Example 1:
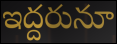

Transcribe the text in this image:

ఇద్దరునూ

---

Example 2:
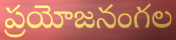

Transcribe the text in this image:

ప్రయోజనంగల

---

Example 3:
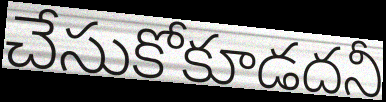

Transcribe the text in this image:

చేసుకోకూడదనీ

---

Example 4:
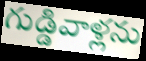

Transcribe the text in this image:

గుడ్డివాళ్లను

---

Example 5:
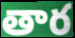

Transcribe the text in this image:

తార